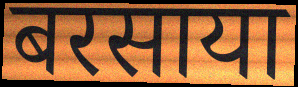
बरसाया